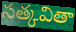
సత్కవితా